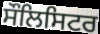
ਸੌਲਿਸਿਟਰ